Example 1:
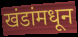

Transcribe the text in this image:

खंडांमधून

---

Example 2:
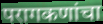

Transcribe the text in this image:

परागकणांचा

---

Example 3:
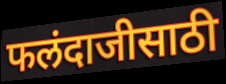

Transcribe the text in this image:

फलंदाजीसाठी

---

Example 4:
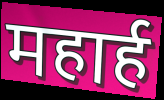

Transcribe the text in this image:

महार्ह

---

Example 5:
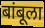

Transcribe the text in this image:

बांबूला